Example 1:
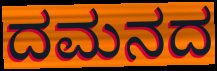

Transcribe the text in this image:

ದಮನದ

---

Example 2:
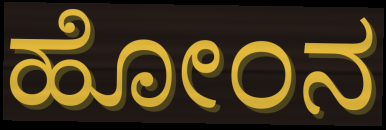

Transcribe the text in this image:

ಹೋಂನ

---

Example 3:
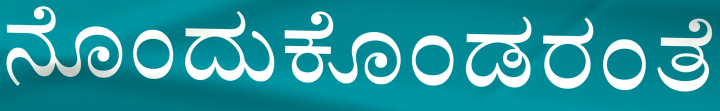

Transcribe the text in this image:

ನೊಂದುಕೊಂಡರಂತೆ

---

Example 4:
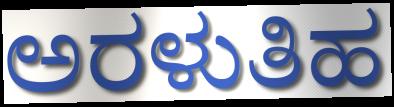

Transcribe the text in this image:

ಅರಳುತಿಹ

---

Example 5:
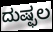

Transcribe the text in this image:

ದುಷ್ಫಲ